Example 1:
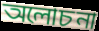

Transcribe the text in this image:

অলোচনা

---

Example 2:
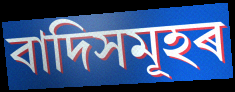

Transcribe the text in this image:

বাদিসমূহৰ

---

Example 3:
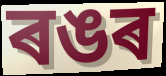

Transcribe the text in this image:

ৰঙৰ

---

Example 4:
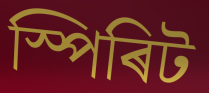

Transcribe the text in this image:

স্পিৰিট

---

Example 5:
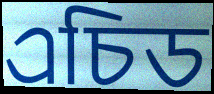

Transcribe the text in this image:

এচিড